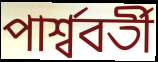
পার্শ্ববর্তী